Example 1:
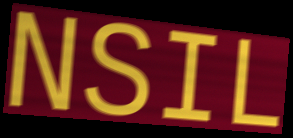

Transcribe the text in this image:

NSIL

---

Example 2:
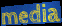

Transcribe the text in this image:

media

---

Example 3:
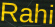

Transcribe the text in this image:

Rahi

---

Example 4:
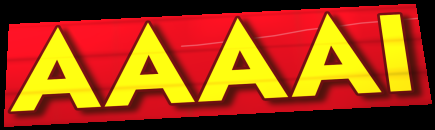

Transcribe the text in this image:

AAAAI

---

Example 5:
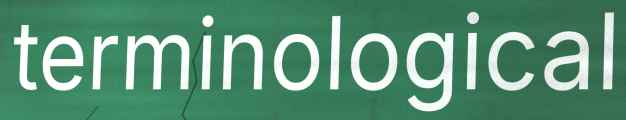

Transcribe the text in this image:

terminological